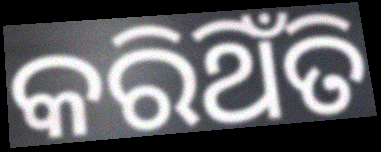
କରିଥିଁତି